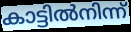
കാട്ടിൽനിന്ന്